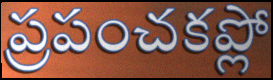
ప్రపంచకప్లో